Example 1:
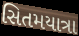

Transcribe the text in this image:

સિતમયાત્રા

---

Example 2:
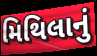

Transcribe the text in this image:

મિથિલાનું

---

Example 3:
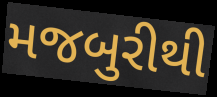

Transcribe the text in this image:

મજબુરીથી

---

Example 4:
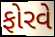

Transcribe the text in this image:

ફોરવે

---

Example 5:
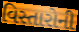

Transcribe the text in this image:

વિસ્તારોની